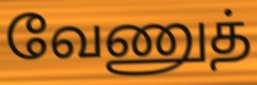
வேணுத்